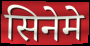
सिनेमे